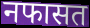
नफासत